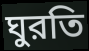
ঘুরতি